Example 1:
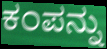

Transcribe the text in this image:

ಕಂಪನ್ನು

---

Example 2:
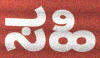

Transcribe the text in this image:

ಸಹಿ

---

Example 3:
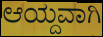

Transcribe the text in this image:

ಆಯ್ದವಾಗಿ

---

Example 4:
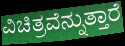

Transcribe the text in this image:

ವಿಚಿತ್ರವೆನ್ನುತ್ತಾರೆ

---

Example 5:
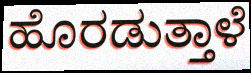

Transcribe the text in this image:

ಹೊರಡುತ್ತಾಳೆ